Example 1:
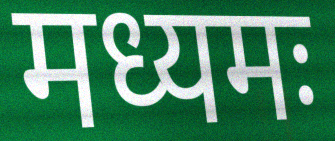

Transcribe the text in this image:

मध्यमः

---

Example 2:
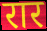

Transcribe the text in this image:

रार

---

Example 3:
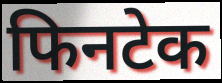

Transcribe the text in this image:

फिनटेक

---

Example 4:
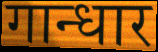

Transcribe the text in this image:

गान्धार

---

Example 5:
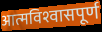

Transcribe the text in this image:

आत्मविश्वासपूर्ण